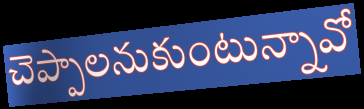
చెప్పాలనుకుంటున్నావో